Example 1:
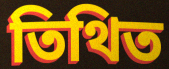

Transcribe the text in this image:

তিথিত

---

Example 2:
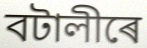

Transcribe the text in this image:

বটালীৰে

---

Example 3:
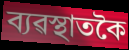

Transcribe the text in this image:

ব্যৱস্থাতকৈ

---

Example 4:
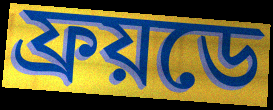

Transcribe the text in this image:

ফ্ৰয়ডে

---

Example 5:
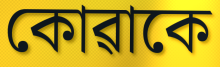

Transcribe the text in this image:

কোৱাকে